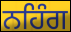
ਨਹਿੰਗ